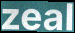
zeal